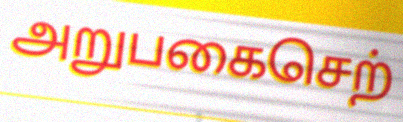
அறுபகைசெற்